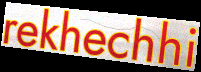
rekhechhi